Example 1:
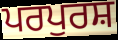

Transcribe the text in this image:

ਪਰਪੁਰਸ਼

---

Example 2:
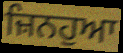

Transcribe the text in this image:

ਜ਼ਿਨਹੁਆ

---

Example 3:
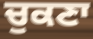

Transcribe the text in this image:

ਚੁਕਣਾ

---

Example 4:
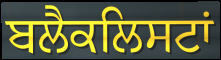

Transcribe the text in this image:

ਬਲੈਕਲਿਸਟਾਂ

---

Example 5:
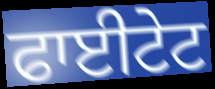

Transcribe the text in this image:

ਫਾਈਟੇਟ